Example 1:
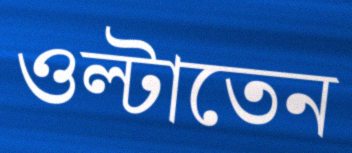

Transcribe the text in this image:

ওল্টাতেন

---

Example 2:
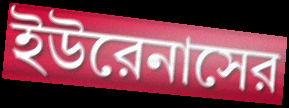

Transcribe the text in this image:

ইউরেনাসের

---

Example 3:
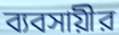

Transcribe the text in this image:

ব্যবসায়ীর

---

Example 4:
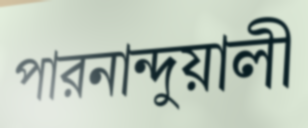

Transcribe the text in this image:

পারনান্দুয়ালী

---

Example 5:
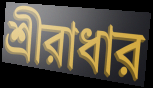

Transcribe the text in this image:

শ্রীরাধার